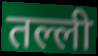
तल्ली